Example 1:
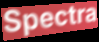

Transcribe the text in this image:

Spectra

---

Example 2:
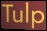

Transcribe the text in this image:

Tulp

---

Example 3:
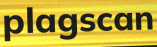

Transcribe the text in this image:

plagscan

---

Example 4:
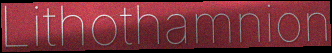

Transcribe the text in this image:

Lithothamnion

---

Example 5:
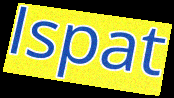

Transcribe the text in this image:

Ispat